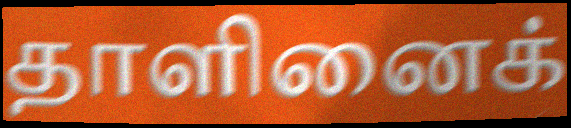
தாளினைக்